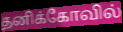
தனிக்கோவில்